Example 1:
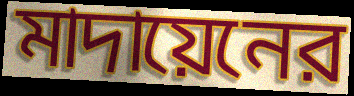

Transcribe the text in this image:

মাদায়েনের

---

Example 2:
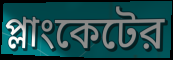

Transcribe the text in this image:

প্লাংকেটের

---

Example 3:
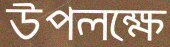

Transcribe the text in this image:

উপলক্ষে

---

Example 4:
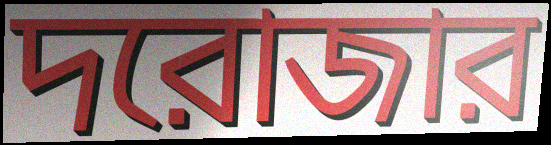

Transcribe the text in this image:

দরোজার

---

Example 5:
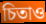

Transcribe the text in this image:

চিতাও